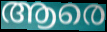
ആരെ